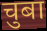
चुबा